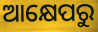
ଆକ୍ଷେପରୁ